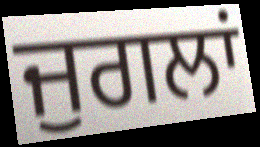
ਜੁਗਲਾਂ